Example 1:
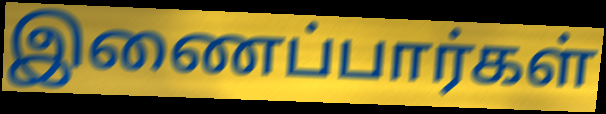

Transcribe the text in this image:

இணைப்பார்கள்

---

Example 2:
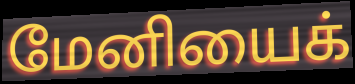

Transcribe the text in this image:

மேனியைக்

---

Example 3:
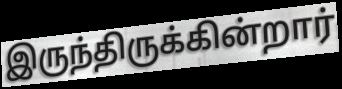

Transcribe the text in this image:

இருந்திருக்கின்றார்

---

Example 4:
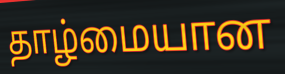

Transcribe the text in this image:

தாழ்மையான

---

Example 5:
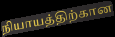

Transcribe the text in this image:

நியாயத்திற்கான